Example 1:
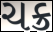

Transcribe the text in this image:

ચક્ર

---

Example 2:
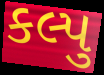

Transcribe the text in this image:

કલ્પુ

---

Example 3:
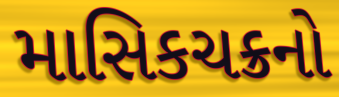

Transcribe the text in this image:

માસિકચક્રનો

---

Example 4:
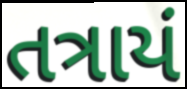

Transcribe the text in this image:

તત્રાયં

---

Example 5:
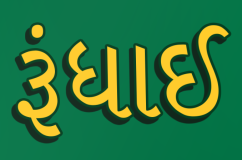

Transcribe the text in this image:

રૂંધાઈ